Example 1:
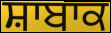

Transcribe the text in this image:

ਸ਼ਾਬਾਕ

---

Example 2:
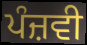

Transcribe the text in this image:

ਪੰਜ਼ਵੀ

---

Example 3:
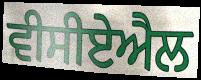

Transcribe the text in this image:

ਵੀਸੀਏਐਲ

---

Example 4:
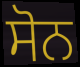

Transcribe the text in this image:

ਸੋਨ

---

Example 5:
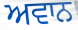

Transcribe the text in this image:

ਅਵਾਨ